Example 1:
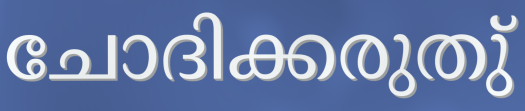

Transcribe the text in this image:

ചോദിക്കരുതു്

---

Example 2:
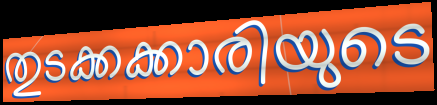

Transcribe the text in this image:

തുടക്കക്കാരിയുടെ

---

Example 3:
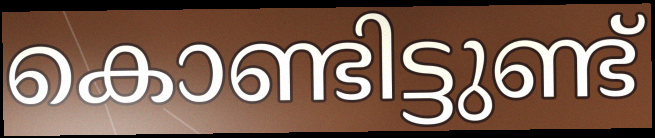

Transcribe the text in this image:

കൊണ്ടിട്ടുണ്ട്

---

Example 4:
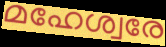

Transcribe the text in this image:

മഹേശ്വരേ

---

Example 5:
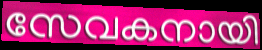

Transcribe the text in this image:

സേവകനായി